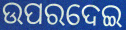
ଉପରଦେଇ